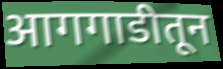
आगगाडीतून